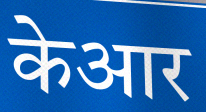
केआर